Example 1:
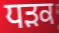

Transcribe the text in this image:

ਧੜਕ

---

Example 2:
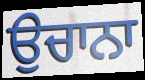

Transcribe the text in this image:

ਉਚਾਨਾ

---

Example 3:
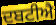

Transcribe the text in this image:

ਦਬਟੀਐ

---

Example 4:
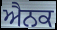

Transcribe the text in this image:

ਐਨਕ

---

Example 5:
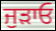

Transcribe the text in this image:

ਜੁੜਾਓ